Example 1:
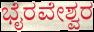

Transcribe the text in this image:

ಭೈರವೇಶ್ವರ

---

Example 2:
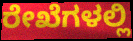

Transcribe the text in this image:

ರೇಖೆಗಳಲ್ಲಿ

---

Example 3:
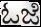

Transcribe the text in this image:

ಓಜೆ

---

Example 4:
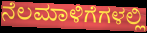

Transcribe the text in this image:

ನೆಲಮಾಳಿಗೆಗಳಲ್ಲಿ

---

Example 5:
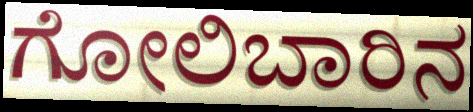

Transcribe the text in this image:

ಗೋಲಿಬಾರಿನ